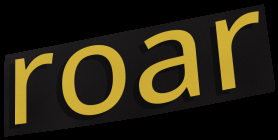
roar